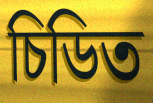
চিডিত